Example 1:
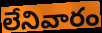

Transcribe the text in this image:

లేనివారం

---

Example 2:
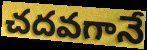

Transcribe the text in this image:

చదవగానే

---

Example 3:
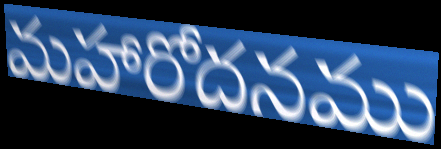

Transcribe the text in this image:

మహారోదనము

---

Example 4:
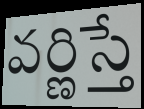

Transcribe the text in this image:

వర్ణిస్తే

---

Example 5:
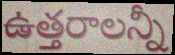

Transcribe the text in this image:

ఉత్తరాలన్నీ